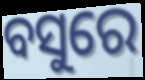
ବସୁରେ